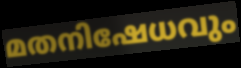
മതനിഷേധവും